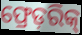
ଫ୍ରେଡ଼ରିକ୍